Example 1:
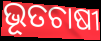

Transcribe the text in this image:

ଭୂତଚାଷୀ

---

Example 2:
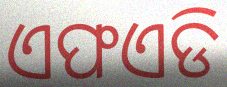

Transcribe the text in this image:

ଏଫଏଡି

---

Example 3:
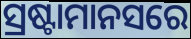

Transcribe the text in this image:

ସ୍ରଷ୍ଟାମାନସରେ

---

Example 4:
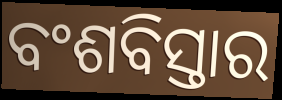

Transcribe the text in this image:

ବଂଶବିସ୍ତାର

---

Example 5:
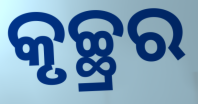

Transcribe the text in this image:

କୃଚ୍ଛ୍ରର